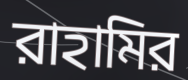
রাহামির